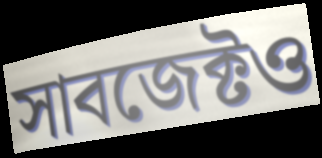
সাবজেক্টও